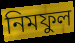
নিমফুল